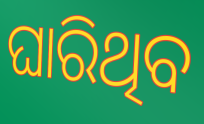
ଘାରିଥିବ